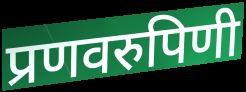
प्रणवरुपिणी